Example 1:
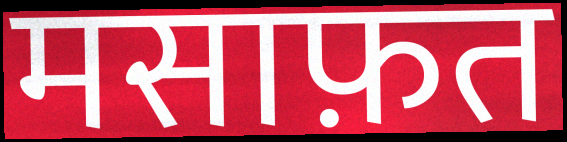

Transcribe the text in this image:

मसाफ़त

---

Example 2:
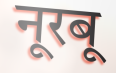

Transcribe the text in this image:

नूरबू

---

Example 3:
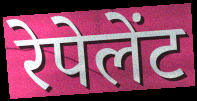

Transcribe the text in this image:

रेपेलेंट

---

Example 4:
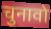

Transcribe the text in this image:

चुनावो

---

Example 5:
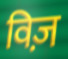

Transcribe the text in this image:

विज़